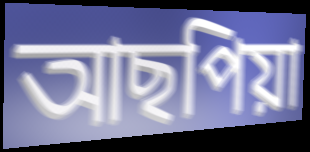
আছপিয়া